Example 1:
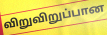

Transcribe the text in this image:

விறுவிறுப்பான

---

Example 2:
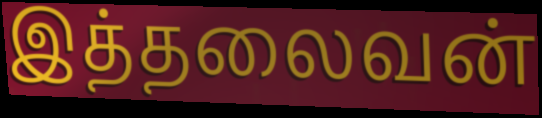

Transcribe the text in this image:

இத்தலைவன்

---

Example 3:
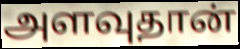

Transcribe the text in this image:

அளவுதான்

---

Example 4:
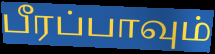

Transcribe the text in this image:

பீரப்பாவும்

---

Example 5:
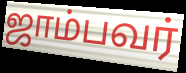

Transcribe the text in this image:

ஜாம்பவர்